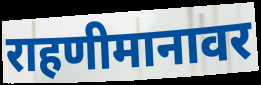
राहणीमानावर